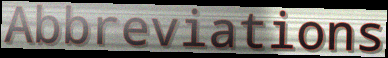
Abbreviations